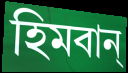
হিমবান্